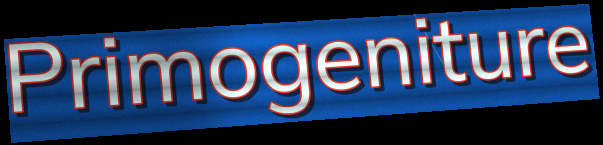
Primogeniture